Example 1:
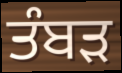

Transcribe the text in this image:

ਤੰਬੜ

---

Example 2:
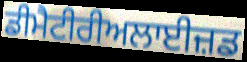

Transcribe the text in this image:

ਡੀਮੈਟੀਰੀਅਲਾਈਜ਼ਡ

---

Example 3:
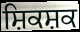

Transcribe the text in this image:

ਸ਼ਿਕਸ਼ਕ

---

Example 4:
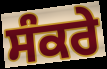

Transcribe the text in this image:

ਸੰਕਰੇ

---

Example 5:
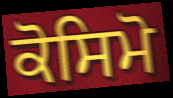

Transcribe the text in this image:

ਕੋਸਿਮੋ